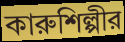
কারুশিল্পীর